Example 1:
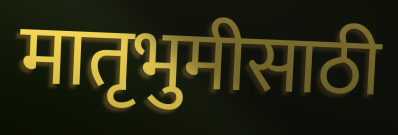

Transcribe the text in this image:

मातृभुमीसाठी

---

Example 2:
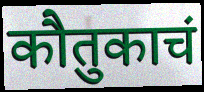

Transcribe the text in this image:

कौतुकाचं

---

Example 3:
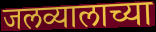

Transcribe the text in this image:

जलव्यालाच्या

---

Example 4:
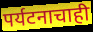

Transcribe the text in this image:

पर्यटनाचाही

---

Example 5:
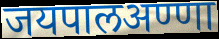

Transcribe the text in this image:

जयपालअण्णा